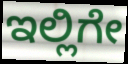
ಇಲ್ಲಿಗೇ